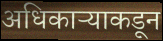
अधिकाऱ्याकडून